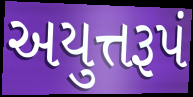
અયુત્તરૂપં